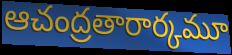
ఆచంద్రతారార్కమూ